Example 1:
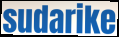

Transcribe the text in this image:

sudarike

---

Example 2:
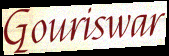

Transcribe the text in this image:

Gouriswar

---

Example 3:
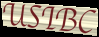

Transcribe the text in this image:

USIBC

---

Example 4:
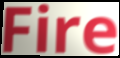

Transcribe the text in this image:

Fire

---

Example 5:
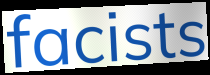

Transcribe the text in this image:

facists